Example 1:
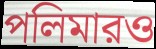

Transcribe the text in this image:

পলিমারও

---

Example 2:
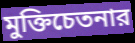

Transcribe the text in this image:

মুক্তিচেতনার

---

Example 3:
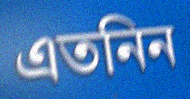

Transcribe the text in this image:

এতনিন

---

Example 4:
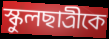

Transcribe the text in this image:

স্কুলছাত্রীকে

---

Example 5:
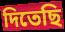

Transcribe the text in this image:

দিতেছি